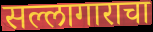
सल्लागाराचा